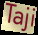
Taji